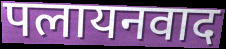
पलायनवाद